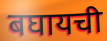
बघायची